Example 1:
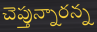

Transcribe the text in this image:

చెప్తున్నారన్న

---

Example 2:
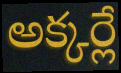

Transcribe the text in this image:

అక్కర్లే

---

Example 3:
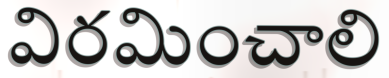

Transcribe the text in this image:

విరమించాలి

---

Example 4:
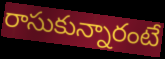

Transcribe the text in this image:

రాసుకున్నారంటే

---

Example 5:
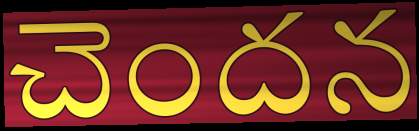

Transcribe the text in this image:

చెందన